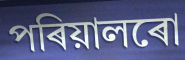
পৰিয়ালৰো